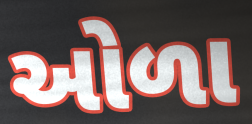
ઓળા